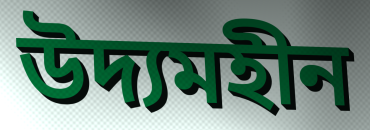
উদ্যমহীন